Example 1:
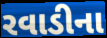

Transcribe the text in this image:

રવાડીના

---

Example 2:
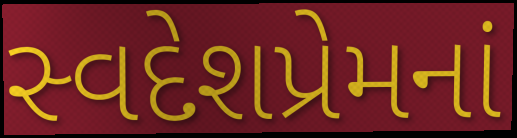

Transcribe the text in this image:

સ્વદેશપ્રેમનાં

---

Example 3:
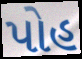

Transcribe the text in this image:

પોહ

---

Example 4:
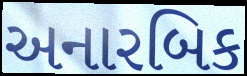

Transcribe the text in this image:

અનારબિક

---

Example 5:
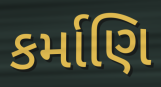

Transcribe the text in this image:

કર્માણિ